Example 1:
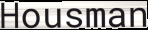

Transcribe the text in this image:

Housman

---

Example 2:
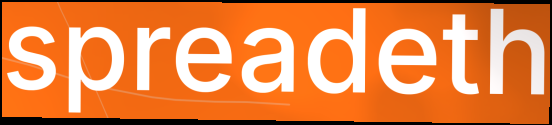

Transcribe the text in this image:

spreadeth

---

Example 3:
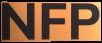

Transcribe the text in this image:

NFP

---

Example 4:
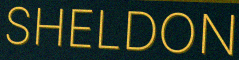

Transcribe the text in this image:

SHELDON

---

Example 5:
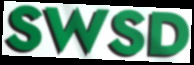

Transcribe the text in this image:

SWSD